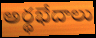
అర్థభేదాలు